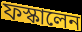
ফস্কালেন